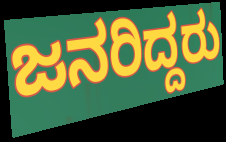
ಜನರಿದ್ದರು